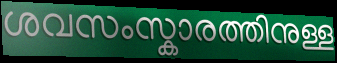
ശവസംസ്കാരത്തിനുള്ള